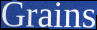
Grains